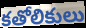
కతోలికులు